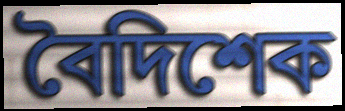
বৈদিশেক